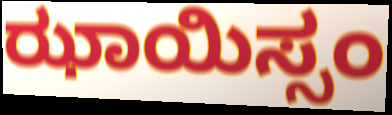
ಝಾಯಿಸ್ಸಂ